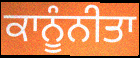
ਕਾਨੂੰਨੀਤਾ